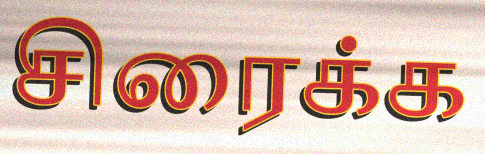
சிரைக்க